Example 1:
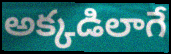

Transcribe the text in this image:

అక్కడిలాగే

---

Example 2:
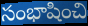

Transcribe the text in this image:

సంభాషించి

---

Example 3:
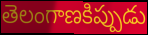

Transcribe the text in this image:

తెలంగాణకిప్పుడు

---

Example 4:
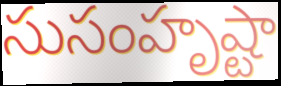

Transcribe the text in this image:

సుసంహృష్టా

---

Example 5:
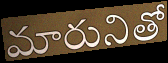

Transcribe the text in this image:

మారునితో